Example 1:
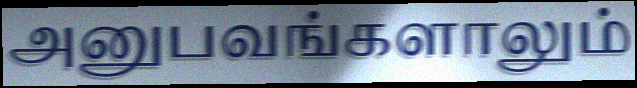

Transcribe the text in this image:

அனுபவங்களாலும்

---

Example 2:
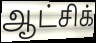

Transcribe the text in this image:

ஆட்சிக்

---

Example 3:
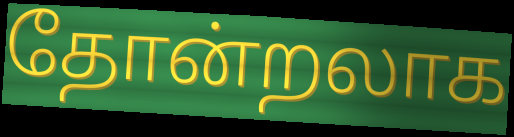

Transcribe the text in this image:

தோன்றலாக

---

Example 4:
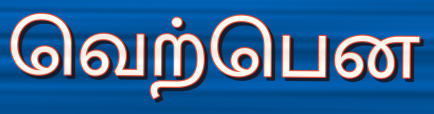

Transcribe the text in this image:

வெற்பென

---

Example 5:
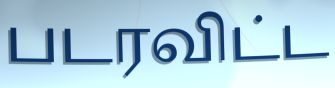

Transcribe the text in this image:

படரவிட்ட